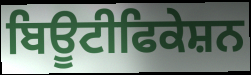
ਬਿਊਟੀਫਿਕੇਸ਼ਨ